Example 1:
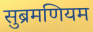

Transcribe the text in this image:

सुब्रमणियम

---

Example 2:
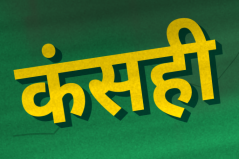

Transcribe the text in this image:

कंसही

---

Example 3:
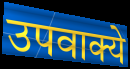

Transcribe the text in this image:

उपवाक्ये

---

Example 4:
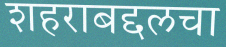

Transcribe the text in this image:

शहराबद्दलचा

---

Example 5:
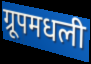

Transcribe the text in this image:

ग्रूपमधली